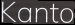
Kanto